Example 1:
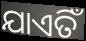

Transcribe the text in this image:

ଯାଏତିଁ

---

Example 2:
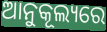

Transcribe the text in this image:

ଆନୁକୂଲ୍ୟରେ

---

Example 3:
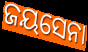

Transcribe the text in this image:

ଜୟସେନା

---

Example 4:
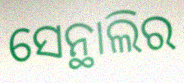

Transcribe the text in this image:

ସେନ୍ଥାଲିର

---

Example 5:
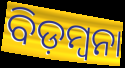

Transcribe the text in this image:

ବିଡ଼ମ୍ୱନା